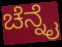
ಚೆನ್ನೈ